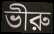
ভীরু